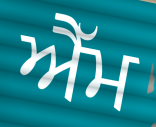
ਐੈੱਮ